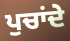
ਪੁਚਾਂਦੇ